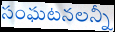
సంఘటనలన్నీ